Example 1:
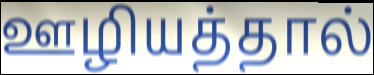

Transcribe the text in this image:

ஊழியத்தால்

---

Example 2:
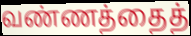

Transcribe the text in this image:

வண்ணத்தைத்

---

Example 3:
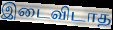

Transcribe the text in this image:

இடைவிடாத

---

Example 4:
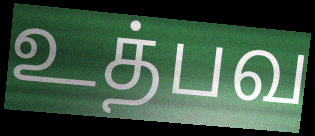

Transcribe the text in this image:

உத்பவ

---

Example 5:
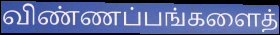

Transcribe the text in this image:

விண்ணப்பங்களைத்